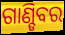
ଗାଣ୍ଡିବର